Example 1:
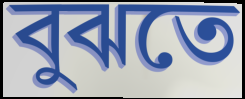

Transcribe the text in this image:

বুঝতে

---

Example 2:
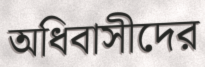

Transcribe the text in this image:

অধিবাসীদের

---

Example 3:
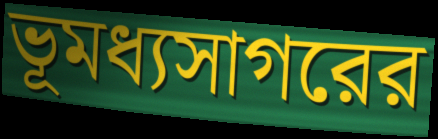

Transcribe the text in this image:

ভূমধ্যসাগরের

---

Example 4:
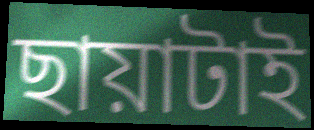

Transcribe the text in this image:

ছায়াটাই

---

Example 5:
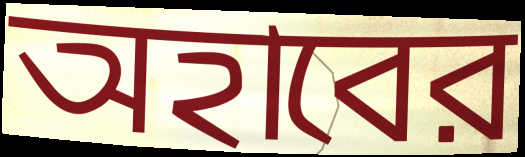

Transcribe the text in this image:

অহাবের